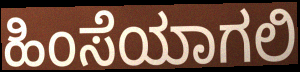
ಹಿಂಸೆಯಾಗಲಿ